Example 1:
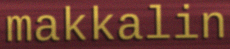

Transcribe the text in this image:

makkalin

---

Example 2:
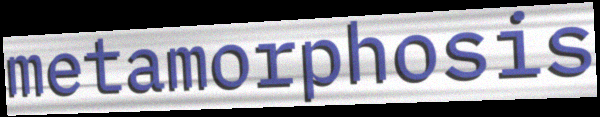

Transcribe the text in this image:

metamorphosis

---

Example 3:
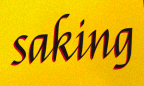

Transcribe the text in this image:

saking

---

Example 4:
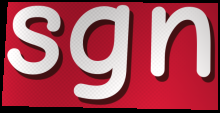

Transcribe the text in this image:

sgn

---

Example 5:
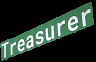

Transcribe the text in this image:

Treasurer